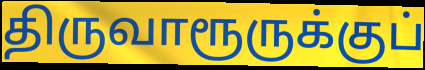
திருவாரூருக்குப்